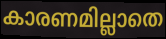
കാരണമില്ലാതെ